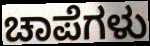
ಚಾಪೆಗಳು